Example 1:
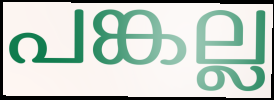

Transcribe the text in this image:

പങ്കല്ല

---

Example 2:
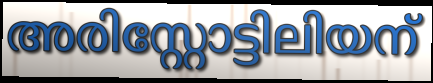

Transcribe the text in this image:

അരിസ്റ്റോട്ടിലിയന്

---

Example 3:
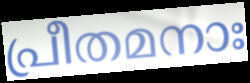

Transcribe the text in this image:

പ്രീതമനാഃ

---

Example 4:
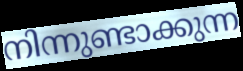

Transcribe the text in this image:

നിന്നുണ്ടാക്കുന്ന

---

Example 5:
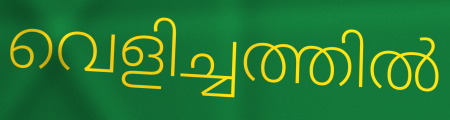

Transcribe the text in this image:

വെളിച്ചത്തിൽ